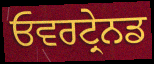
ਓਵਰਟ੍ਰੇਨਡ